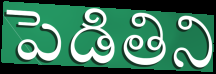
పెడితిని